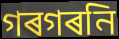
গৰগৰনি